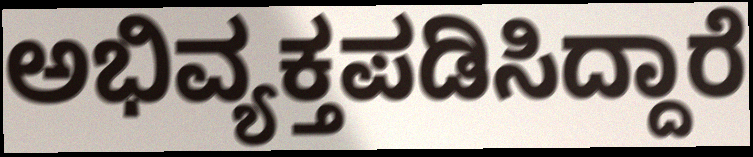
ಅಭಿವ್ಯಕ್ತಪಡಿಸಿದ್ದಾರೆ